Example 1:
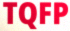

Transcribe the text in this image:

TQFP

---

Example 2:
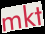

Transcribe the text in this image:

mkt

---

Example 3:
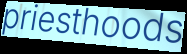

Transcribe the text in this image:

priesthoods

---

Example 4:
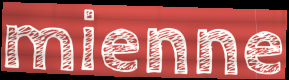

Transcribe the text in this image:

mienne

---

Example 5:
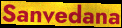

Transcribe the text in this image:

Sanvedana